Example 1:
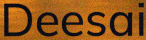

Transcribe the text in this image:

Deesai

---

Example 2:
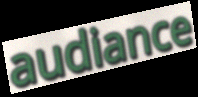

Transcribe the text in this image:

audiance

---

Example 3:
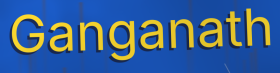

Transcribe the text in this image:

Ganganath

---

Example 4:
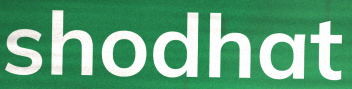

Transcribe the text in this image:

shodhat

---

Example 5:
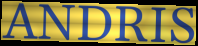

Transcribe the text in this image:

ANDRIS